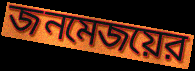
জনমেজয়ের